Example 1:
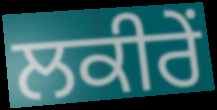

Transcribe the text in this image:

ਲਕੀਰੇਂ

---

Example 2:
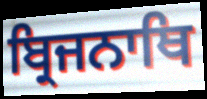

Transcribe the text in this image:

ਬ੍ਰਿਜਨਾਥਿ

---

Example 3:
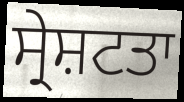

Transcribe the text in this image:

ਸ੍ਰੇਸ਼ਟਤਾ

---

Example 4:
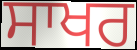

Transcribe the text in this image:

ਸਾਖਰ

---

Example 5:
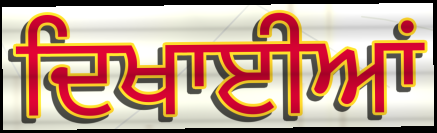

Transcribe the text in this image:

ਦਿਖਾਈਆਂ